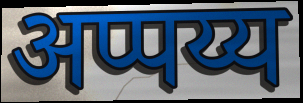
अप्पय्य